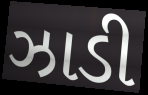
ઝાડી